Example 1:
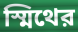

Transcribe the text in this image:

স্মিথের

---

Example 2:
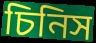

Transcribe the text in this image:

চিনিস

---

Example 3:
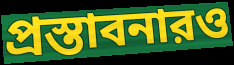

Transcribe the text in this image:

প্রস্তাবনারও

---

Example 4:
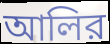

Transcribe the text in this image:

আলির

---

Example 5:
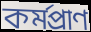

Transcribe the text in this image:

কর্মপ্রাণ